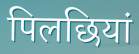
पिलछियां